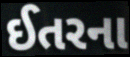
ઈતરના